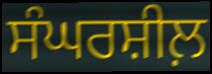
ਸੰਘਰਸ਼ੀਲ਼